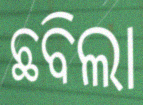
ଛବିଲା